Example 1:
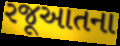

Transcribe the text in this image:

રજૂઆતના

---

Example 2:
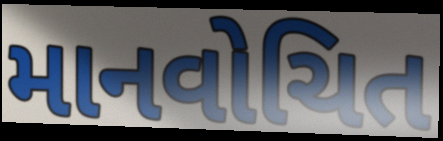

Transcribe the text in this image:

માનવોચિત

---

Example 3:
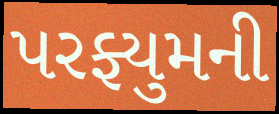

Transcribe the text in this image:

પરફ્યુમની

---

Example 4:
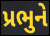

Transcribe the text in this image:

પ્રભુને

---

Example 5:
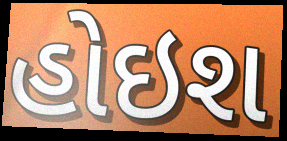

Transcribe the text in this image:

હોઇશ